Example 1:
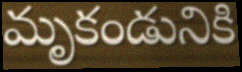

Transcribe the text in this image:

మృకండునికి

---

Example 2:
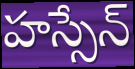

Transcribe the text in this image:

హస్సేన్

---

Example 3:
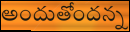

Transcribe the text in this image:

అందుతోందన్న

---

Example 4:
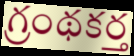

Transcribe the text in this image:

గ్రంథకర్త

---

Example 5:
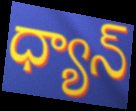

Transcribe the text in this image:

ధ్యాన్